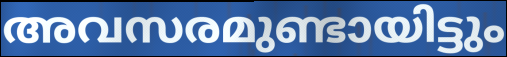
അവസരമുണ്ടായിട്ടും